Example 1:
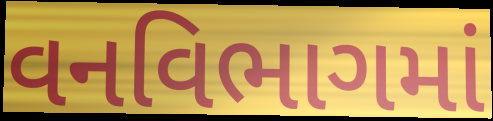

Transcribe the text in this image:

વનવિભાગમાં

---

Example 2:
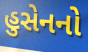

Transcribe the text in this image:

હુસેનનો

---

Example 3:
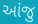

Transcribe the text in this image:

આંજુ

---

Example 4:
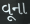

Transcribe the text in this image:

વૂના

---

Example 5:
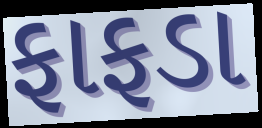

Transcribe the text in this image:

ફાફડા